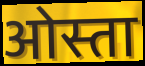
ओस्ता